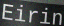
Eirin